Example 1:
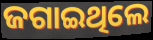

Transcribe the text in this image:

ଜଗାଇଥିଲେ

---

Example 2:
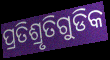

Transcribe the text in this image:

ପ୍ରତିଶ୍ରୃତିଗୁଡିକ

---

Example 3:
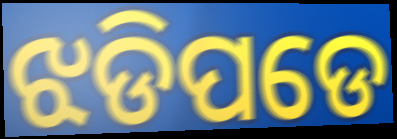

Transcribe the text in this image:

ଝଡିପଡେ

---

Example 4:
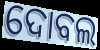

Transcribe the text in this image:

ଦୋବଲ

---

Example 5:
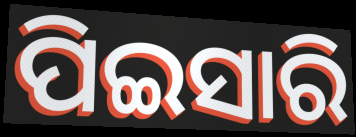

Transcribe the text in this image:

ପିଇସାରି